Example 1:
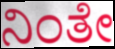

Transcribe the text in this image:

ನಿಂತೇ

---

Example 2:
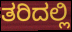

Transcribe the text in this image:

ತರಿದಲ್ಲಿ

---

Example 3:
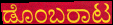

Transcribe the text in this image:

ಡೊಂಬರಾಟ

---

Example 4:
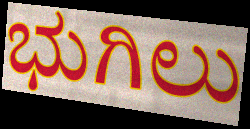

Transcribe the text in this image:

ಭುಗಿಲು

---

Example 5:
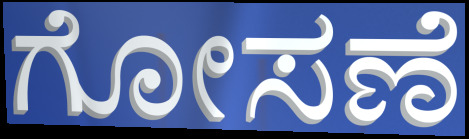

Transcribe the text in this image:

ಗೋಸಣೆ